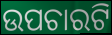
ଉପଚାରଟି